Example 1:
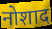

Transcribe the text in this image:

नोशाद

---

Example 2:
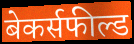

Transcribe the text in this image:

बेकर्सफील्ड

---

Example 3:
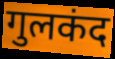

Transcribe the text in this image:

गुलकंद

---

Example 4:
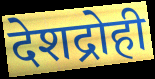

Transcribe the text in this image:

देशद्रोही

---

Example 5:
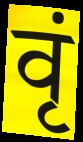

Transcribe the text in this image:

वृं